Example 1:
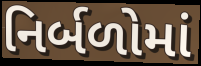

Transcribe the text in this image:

નિર્બળોમાં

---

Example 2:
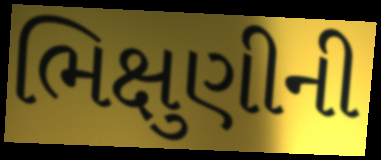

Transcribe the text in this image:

ભિક્ષુણીની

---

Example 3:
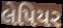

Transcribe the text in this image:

લેપિયર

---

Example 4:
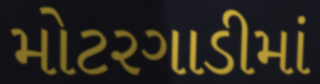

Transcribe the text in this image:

મોટરગાડીમાં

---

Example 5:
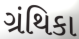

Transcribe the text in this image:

ગ્રંથિકા